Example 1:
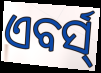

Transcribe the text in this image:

ଏବର୍ସ୍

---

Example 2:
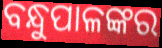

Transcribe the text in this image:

ବନ୍ଧୁପାଳଙ୍କର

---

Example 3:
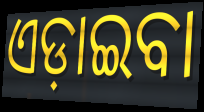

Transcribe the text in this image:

ଏଡ଼ାଇବା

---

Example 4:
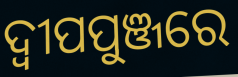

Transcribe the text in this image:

ଦ୍ବୀପପୁଞ୍ଜରେ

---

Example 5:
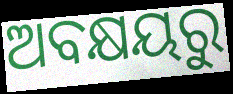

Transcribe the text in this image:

ଅବକ୍ଷୟରୁ